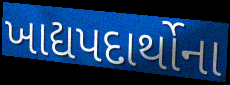
ખાદ્યપદાર્થોના